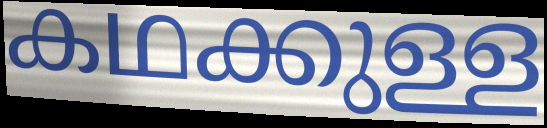
കഥക്കുള്ള